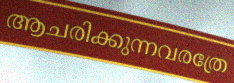
ആചരിക്കുന്നവരത്രേ